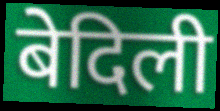
बेदिली